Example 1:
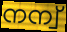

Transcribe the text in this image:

നന്വ്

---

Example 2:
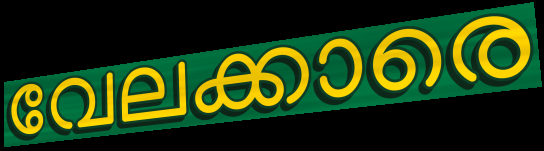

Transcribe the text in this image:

വേലക്കാരെ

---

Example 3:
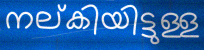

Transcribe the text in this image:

നല്കിയിട്ടുള്ള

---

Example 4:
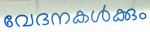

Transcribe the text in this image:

വേദനകൾക്കും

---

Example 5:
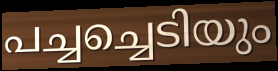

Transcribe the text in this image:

പച്ചച്ചെടിയും